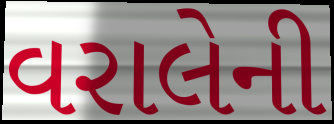
વરાલેની